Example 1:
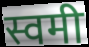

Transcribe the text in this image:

स्वमी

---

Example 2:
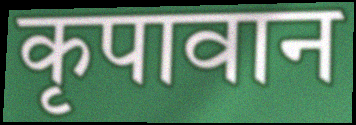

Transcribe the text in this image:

कृपावान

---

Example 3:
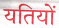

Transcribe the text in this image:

यतियों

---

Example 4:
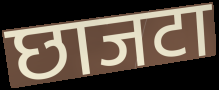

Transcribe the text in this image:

छाजटा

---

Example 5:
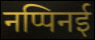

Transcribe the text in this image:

नप्पिनई